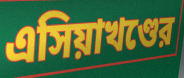
এসিয়াখণ্ডের